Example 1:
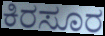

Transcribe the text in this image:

ಕಿರಸೂರ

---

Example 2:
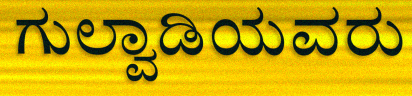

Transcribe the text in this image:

ಗುಲ್ವಾಡಿಯವರು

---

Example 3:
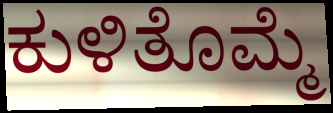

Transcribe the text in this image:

ಕುಳಿತೊಮ್ಮೆ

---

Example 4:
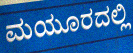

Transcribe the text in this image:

ಮಯೂರದಲ್ಲಿ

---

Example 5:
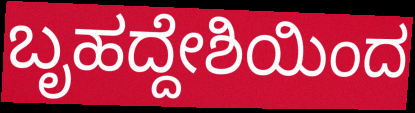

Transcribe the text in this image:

ಬೃಹದ್ದೇಶಿಯಿಂದ